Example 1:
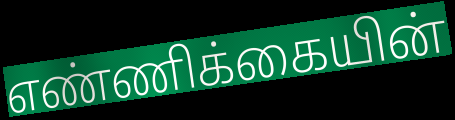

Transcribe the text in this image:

எண்ணிக்கையின்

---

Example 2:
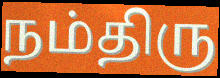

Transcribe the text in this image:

நம்திரு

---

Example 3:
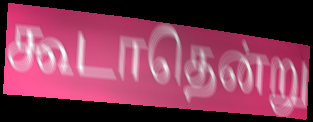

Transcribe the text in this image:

கூடாதென்று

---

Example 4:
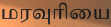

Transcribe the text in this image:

மரவுரியை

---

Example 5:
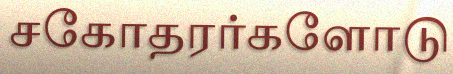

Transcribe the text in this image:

சகோதரர்களோடு